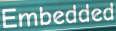
Embedded